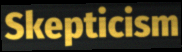
Skepticism